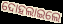
ଦୋହଲାଇଲେ